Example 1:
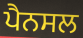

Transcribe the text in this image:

ਪੈਨਸਲ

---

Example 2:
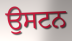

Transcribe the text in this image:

ਉਸਟਨ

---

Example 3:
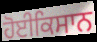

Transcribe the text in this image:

ਹੋਈਕਿਸਾਨ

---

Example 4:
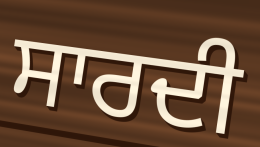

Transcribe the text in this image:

ਸਾਰਦੀ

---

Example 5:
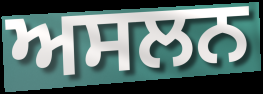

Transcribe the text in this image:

ਅਸਲਨ